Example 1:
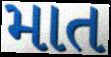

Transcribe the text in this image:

માત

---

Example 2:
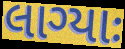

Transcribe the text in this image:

લાગ્યાઃ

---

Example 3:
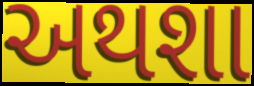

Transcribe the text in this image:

અથશા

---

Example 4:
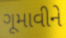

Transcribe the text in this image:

ગૂમાવીને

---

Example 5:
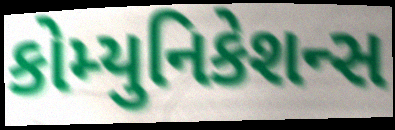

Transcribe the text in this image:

કોમ્યુનિકેશન્સ